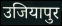
उजियापुर